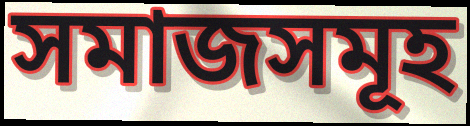
সমাজসমূহ